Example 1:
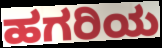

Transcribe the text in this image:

ಹಗರಿಯ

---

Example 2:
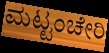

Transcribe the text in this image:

ಮಟ್ಟಂಚೇರಿ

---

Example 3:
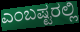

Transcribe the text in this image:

ಎಂಬಷ್ಟರಲ್ಲಿ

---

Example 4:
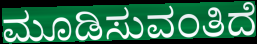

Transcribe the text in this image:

ಮೂಡಿಸುವಂತಿದೆ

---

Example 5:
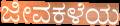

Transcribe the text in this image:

ಜೀವಕಳೆಯ